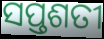
ସପ୍ତଶତୀ